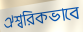
ঐশ্বরিকভাবে